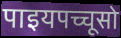
पाइयपच्चूसो